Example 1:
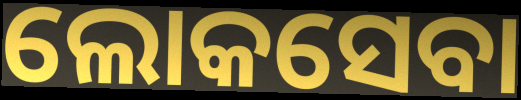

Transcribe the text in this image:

ଲୋକସେବା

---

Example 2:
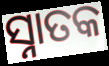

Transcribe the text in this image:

ସ୍ନାତକ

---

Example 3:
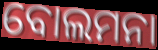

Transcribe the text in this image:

ବୋଲମନା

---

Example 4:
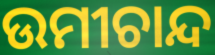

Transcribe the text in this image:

ଉମୀଚାନ୍ଦ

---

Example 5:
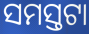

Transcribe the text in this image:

ସମସ୍ତଟା